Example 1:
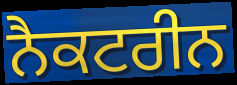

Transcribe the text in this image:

ਨੈਕਟਰੀਨ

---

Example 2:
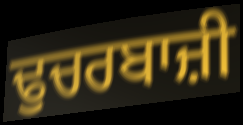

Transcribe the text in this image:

ਢੁਚਰਬਾਜ਼ੀ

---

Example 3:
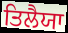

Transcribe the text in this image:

ਤਿਲੈਯਾ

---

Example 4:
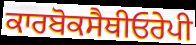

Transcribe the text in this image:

ਕਾਰਬੋਕਸੈਥੀਓਰੇਪੀ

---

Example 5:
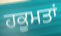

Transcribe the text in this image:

ਹਕੂਮਤਾਂ